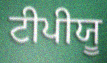
ਟੀਪੀਯੂ